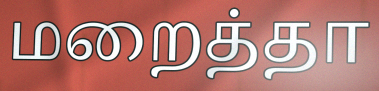
மறைத்தா